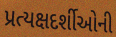
પ્રત્યક્ષદર્શીઓની